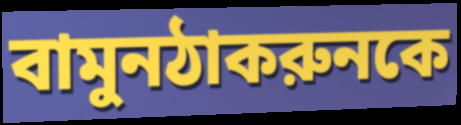
বামুনঠাকরুনকে